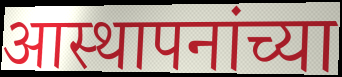
आस्थापनांच्या